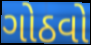
ગોઠવો